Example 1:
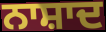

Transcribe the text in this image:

ਨਾਸ਼ਾਦ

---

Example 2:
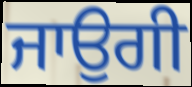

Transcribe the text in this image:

ਜਾਉਗੀ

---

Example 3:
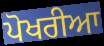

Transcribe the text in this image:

ਪੋਖਰੀਆ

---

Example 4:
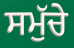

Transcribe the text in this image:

ਸਮੁੱਚੇ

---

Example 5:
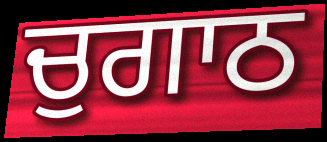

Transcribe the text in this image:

ਚੁਗਾਠ